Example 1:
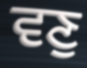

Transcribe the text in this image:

ਵਣੁ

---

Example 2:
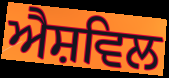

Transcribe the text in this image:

ਐਸ਼ਵਿਲ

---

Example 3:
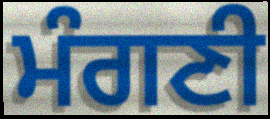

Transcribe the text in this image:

ਮੰਗਣੀ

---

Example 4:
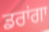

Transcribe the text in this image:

ਡਰਾਂਗਾ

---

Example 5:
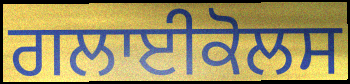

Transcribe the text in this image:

ਗਲਾਈਕੋਲਸ